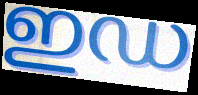
ഇഡ